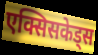
एक्सिसकेड्स